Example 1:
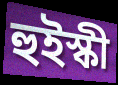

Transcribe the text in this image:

হুইস্কী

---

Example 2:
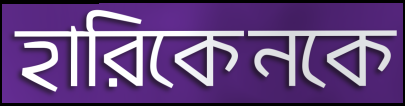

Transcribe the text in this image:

হারিকেনকে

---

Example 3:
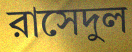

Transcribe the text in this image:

রাসেদুল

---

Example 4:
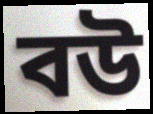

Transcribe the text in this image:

বউ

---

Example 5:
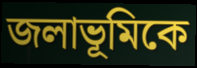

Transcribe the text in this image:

জলাভূমিকে